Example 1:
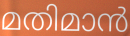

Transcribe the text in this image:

മതിമാൻ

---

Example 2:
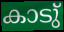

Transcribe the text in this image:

കാടു്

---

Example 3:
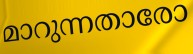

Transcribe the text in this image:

മാറുന്നതാരോ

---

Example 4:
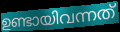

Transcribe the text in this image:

ഉണ്ടായിവന്നത്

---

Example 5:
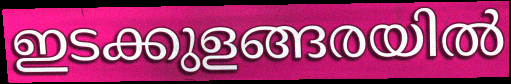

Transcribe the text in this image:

ഇടക്കുളങ്ങരയിൽ